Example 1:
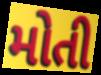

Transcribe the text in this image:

મોતી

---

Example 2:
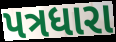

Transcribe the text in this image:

પત્રધારા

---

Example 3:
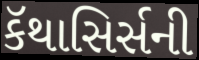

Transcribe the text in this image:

કૅથાસિર્સની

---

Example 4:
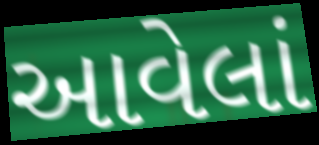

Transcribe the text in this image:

આવેલાં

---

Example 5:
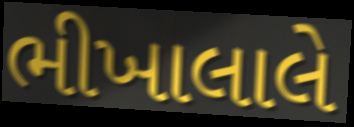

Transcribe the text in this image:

ભીખાલાલે